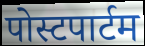
पोस्टपार्टम